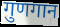
गुणगान